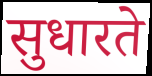
सुधारते